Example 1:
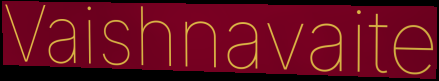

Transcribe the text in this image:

Vaishnavaite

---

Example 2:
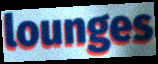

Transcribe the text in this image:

lounges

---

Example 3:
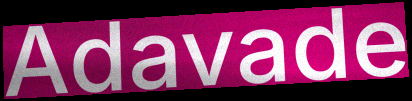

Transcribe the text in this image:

Adavade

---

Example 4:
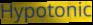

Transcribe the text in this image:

Hypotonic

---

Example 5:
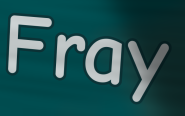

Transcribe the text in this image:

Fray